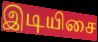
இடியிசை